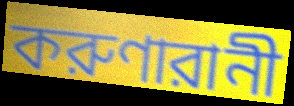
করুণারানী